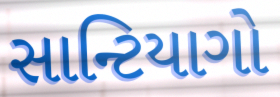
સાન્ટિયાગો